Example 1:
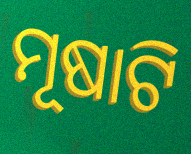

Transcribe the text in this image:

ମୂଷାଟି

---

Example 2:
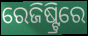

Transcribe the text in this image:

ରେଜିଷ୍ଟ୍ରିରେ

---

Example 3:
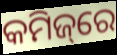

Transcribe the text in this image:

କମିଜ୍‌ରେ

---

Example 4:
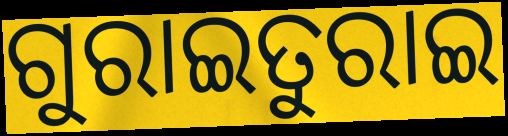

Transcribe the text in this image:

ଗୁରାଇତୁରାଇ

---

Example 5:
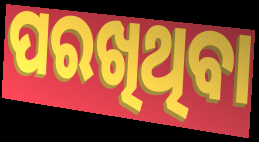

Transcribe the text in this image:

ପରଖିଥିବା